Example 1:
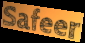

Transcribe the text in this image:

Safeer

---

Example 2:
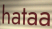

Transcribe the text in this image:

hataa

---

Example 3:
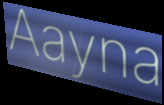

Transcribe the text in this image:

Aayna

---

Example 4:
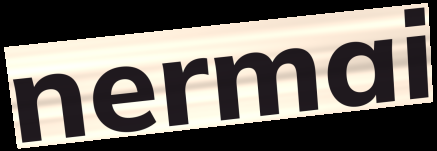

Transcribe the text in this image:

nermai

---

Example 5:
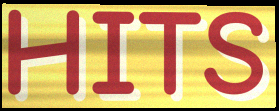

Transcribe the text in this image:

HITS